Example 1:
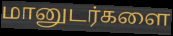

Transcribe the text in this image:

மானுடர்களை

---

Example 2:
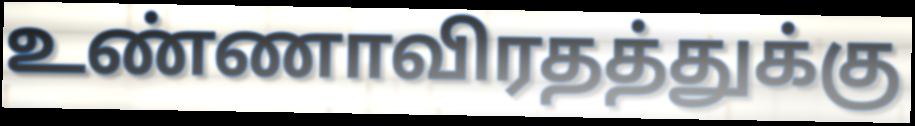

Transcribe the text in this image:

உண்ணாவிரதத்துக்கு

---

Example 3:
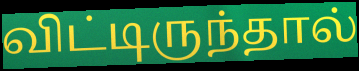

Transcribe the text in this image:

விட்டிருந்தால்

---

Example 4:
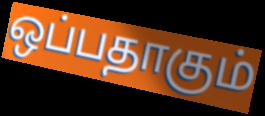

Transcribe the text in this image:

ஒப்பதாகும்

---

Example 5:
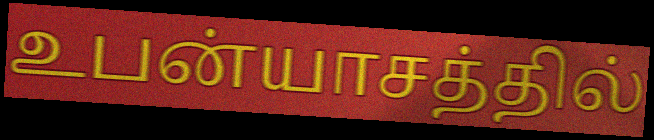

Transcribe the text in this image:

உபன்யாசத்தில்